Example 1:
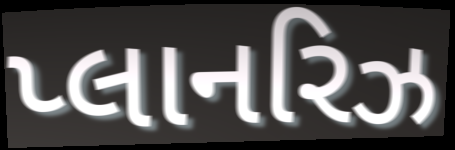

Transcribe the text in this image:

પ્લાનરિઝ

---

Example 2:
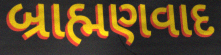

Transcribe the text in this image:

બ્રાહ્મણવાદ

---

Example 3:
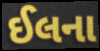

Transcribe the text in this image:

ઈલના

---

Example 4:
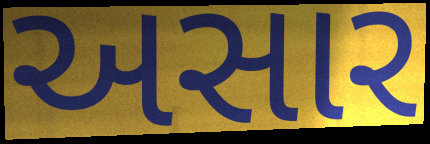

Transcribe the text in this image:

અસાર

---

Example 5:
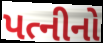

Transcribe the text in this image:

પત્નીનો